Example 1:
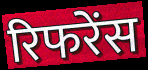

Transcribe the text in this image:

रिफरेंस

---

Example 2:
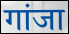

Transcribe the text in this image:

गांजा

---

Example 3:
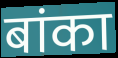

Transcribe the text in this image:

बांका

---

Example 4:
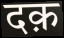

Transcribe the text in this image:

दक़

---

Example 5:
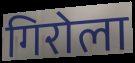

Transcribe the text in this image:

गिरोला